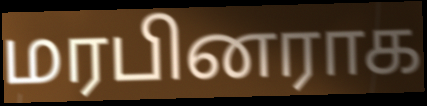
மரபினராக